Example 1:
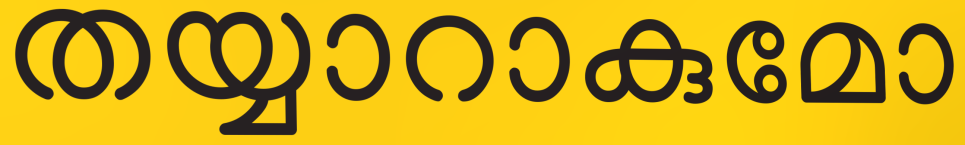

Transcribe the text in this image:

തയ്യാറാകുമോ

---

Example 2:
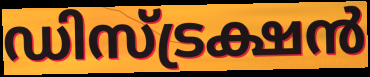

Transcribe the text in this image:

ഡിസ്ട്രക്ഷൻ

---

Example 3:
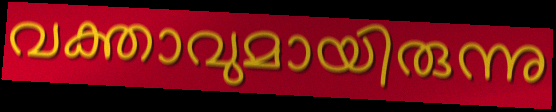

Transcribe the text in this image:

വക്താവുമായിരുന്നു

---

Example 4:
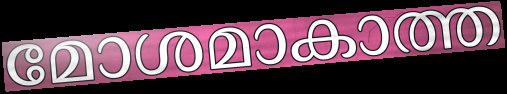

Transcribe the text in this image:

മോശമാകാത്ത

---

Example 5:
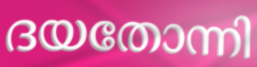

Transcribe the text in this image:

ദയതോന്നി